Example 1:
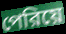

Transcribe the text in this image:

পেরিয়ে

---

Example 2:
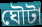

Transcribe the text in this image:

ঘৌটা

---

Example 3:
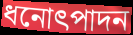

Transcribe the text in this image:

ধনোৎপাদন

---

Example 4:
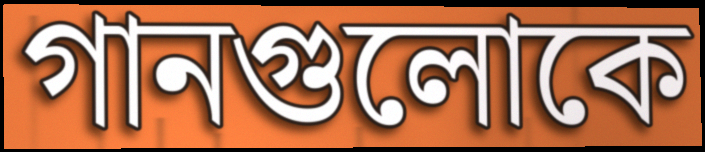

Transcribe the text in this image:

গানগুলোকে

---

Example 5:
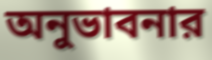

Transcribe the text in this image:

অনুভাবনার